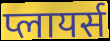
प्लायर्स